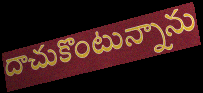
దాచుకొంటున్నాను